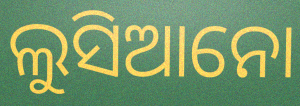
ଲୁସିଆନୋ